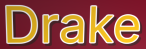
Drake